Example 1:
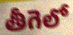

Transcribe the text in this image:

తీగెలో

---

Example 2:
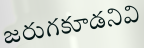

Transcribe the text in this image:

జరుగకూడనివి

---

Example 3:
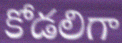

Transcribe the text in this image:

కోడలిగా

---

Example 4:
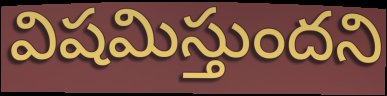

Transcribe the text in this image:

విషమిస్తుందని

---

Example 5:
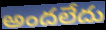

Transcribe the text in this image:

అందలేదు